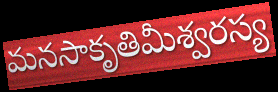
మనసాకృతిమీశ్వరస్య